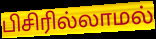
பிசிரில்லாமல்